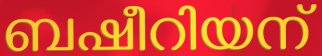
ബഷീറിയന്